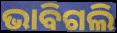
ଭାବିଗଲି